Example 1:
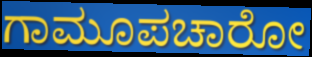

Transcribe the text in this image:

ಗಾಮೂಪಚಾರೋ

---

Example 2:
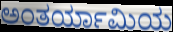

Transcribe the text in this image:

ಅಂತರ್ಯಾಮಿಯ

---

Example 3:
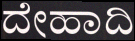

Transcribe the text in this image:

ದೇಹಾದಿ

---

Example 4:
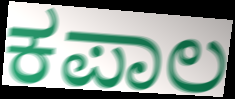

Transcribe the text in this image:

ಕಪಾಲ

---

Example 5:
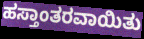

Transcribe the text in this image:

ಹಸ್ತಾಂತರವಾಯಿತು